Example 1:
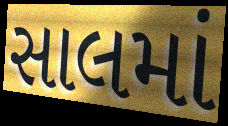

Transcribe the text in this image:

સાલમાં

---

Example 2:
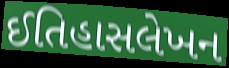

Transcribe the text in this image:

ઈતિહાસલેખન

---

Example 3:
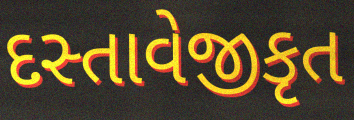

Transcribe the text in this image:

દસ્તાવેજીકૃત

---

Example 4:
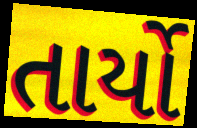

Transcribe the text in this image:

તાર્યો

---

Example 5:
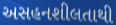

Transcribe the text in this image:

અસહનશીલતાથી